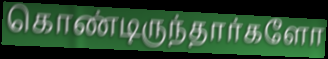
கொண்டிருந்தார்களோ